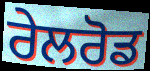
ਰੇਲਰੋਡ